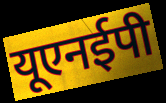
यूएनईपी